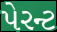
પેરન્ટ